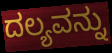
ದಲ್ಯವನ್ನು